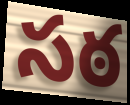
సఠ